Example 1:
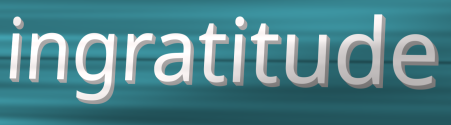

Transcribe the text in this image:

ingratitude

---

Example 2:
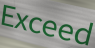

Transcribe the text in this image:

Exceed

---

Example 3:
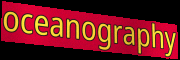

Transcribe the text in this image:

oceanography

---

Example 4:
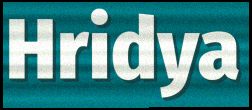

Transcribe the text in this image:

Hridya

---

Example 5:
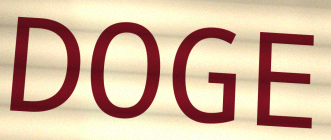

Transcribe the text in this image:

DOGE